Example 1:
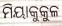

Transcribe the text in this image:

ମିୟାକୁକୁଳ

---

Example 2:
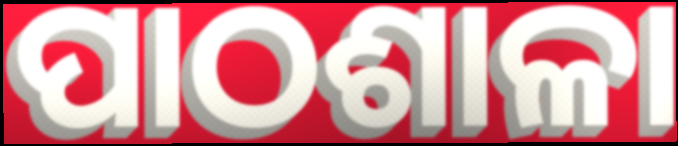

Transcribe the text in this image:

ପାଠଶାଳା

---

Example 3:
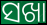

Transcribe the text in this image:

ସଖା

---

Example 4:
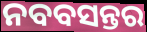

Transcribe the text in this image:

ନବବସନ୍ତର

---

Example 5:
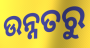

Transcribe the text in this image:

ଉନ୍ନତରୁ